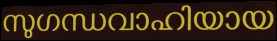
സുഗന്ധവാഹിയായ